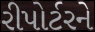
રીપોર્ટરને